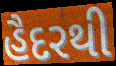
હૈદરથી